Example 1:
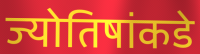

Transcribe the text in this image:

ज्योतिषांकडे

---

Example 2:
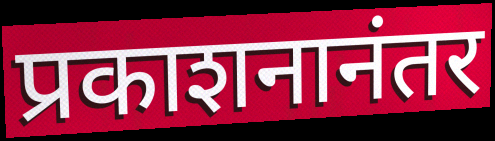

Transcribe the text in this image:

प्रकाशनानंतर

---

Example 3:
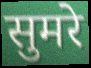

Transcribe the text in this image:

सुमरे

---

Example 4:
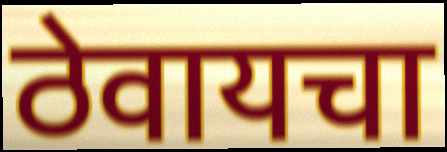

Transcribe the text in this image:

ठेवायचा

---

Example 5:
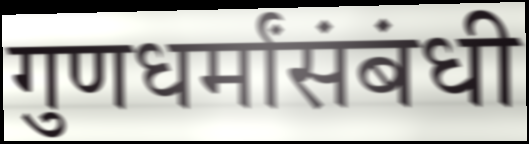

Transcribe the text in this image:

गुणधर्मांसंबंधी